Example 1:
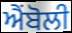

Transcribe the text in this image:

ਐਂਬੋਲੀ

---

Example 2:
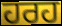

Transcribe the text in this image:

ਹਰਹ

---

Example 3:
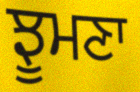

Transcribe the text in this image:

ਝੂਮਣਾ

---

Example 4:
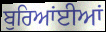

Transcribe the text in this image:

ਬੁਰਿਆਂਈਆਂ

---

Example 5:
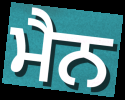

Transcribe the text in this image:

ਮੈਨ